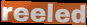
reeled